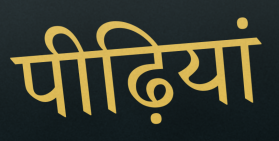
पीढ़ियां